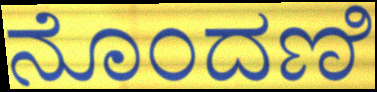
ನೊಂದಣಿ